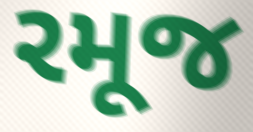
રમૂજ